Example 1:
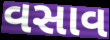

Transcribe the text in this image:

વસાવ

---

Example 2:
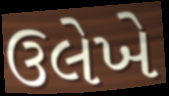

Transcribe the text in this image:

ઉલેખે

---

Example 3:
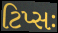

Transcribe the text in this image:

ટિપ્સઃ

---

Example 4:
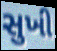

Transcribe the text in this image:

સુખી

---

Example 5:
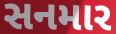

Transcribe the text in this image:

સનમાર